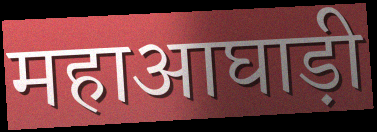
महाआघाड़ी